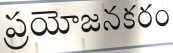
ప్రయోజనకరం